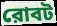
রোবট